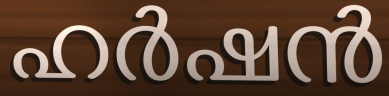
ഹർഷൻ